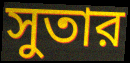
সুতার